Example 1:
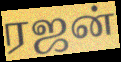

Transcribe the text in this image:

ரஜன்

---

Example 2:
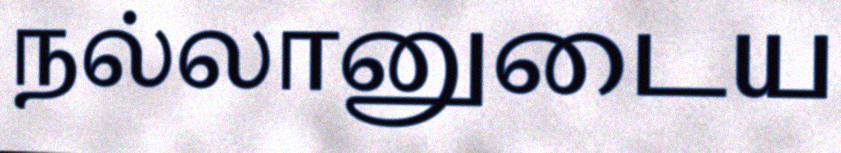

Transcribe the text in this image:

நல்லானுடைய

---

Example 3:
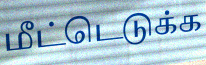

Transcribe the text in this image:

மீட்டெடுக்க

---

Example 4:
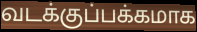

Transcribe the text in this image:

வடக்குப்பக்கமாக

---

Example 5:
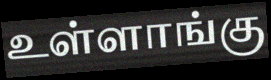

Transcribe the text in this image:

உள்ளாங்கு